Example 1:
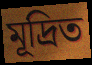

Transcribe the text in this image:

মূদ্রিত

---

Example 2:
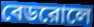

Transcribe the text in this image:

বেডরোলে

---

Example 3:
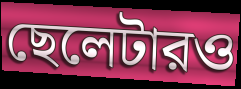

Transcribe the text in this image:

ছেলেটারও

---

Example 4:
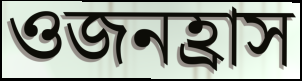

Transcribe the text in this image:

ওজনহ্রাস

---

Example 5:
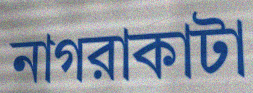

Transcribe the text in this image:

নাগরাকাটা